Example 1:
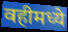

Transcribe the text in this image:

वहीमध्ये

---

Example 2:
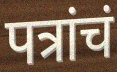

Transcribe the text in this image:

पत्रांचं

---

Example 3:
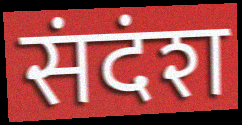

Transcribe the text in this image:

संदंश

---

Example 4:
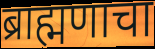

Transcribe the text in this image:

ब्राह्मणाचा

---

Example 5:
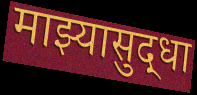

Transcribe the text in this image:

माझ्यासुद्धा